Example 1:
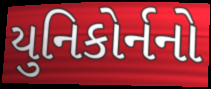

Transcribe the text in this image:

યુનિકોર્નનો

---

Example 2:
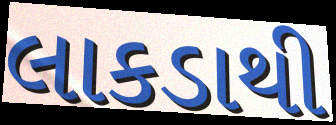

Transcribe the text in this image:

લાકડાથી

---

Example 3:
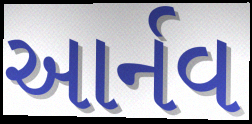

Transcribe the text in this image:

આર્નવ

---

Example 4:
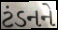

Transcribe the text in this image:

ટંડનને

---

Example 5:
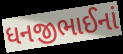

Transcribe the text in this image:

ધનજીભાઈનાં